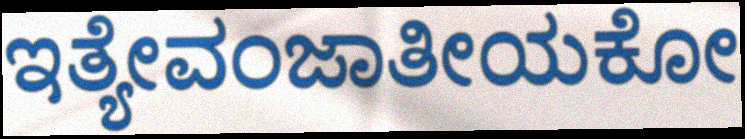
ಇತ್ಯೇವಂಜಾತೀಯಕೋ